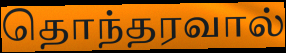
தொந்தரவால்